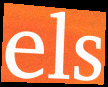
els